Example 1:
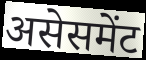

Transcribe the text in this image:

असेसमेंट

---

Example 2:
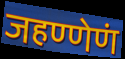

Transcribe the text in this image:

जहण्णेणं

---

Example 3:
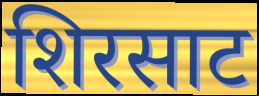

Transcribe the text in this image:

शिरसाट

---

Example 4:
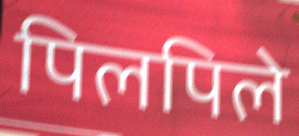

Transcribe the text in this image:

पिलपिले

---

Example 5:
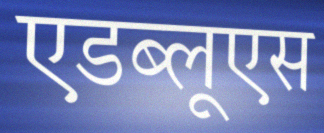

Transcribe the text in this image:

एडब्लूएस